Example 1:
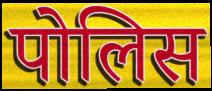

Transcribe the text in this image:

पोलिस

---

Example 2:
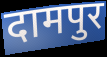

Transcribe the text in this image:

दामपुर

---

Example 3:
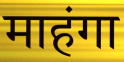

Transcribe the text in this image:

माहंगा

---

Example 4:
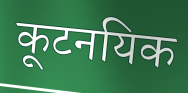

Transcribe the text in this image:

कूटनयिक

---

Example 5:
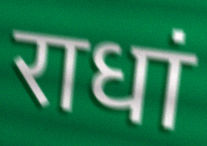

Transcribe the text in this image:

राधां